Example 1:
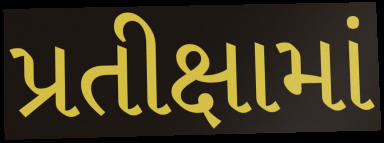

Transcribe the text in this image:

પ્રતીક્ષામાં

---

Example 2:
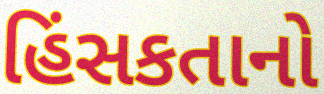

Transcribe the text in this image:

હિંસકતાનો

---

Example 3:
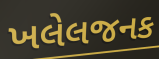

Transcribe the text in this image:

ખલેલજનક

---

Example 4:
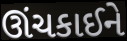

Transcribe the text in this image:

ઊંચકાઈને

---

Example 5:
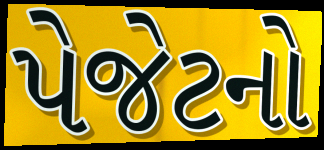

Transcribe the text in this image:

પેજેટનો